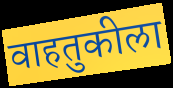
वाहतुकीला